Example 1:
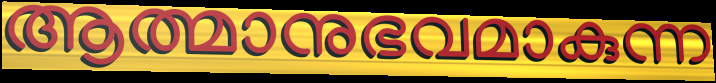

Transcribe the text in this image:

ആത്മാനുഭവമാകുന്ന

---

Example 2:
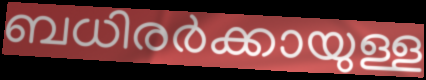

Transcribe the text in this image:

ബധിരർക്കായുള്ള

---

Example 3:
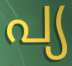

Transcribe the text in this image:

പ്യ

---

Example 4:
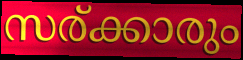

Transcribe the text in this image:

സര്ക്കാരും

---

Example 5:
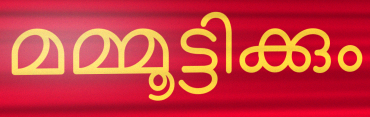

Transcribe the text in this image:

മമ്മൂട്ടിക്കും